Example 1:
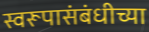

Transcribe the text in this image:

स्वरूपासंबंधीच्या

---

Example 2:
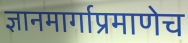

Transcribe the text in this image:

ज्ञानमार्गाप्रमाणेच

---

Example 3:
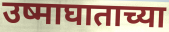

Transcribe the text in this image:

उष्माघाताच्या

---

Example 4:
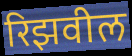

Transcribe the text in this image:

रिझवील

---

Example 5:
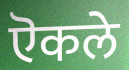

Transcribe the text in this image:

ऎकले